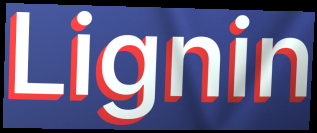
Lignin